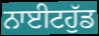
ਨਾਈਟਹੁੱਡ